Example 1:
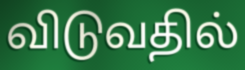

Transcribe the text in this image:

விடுவதில்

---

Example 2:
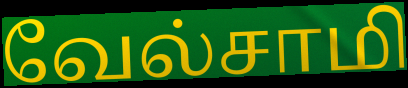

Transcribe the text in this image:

வேல்சாமி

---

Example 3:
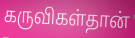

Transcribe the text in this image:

கருவிகள்தான்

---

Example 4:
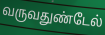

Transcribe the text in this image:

வருவதுண்டேல்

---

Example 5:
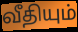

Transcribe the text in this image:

வீதியும்